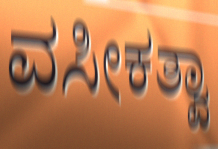
ವಸೀಕತ್ವಾ